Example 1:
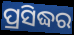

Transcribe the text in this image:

ପ୍ରସିଦ୍ଧର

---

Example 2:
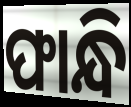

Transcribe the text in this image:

ଫାନ୍ଧି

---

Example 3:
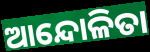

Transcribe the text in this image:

ଆନ୍ଦୋଳିତା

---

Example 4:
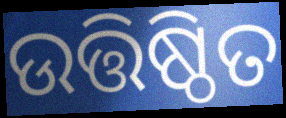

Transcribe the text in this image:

ଉତ୍ତିଷ୍ଠିତ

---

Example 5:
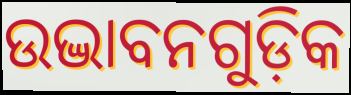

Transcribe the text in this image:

ଉଦ୍ଭାବନଗୁଡ଼ିକ